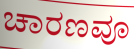
ಚಾರಣವೂ